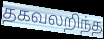
தகவலறிந்த